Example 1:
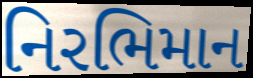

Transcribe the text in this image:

નિરભિમાન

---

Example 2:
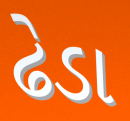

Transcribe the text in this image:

ઢેડા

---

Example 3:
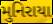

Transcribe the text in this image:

મુનિરાયા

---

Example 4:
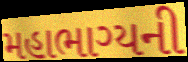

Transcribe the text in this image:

મહાભાગ્યની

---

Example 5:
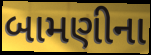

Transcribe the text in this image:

બામણીના